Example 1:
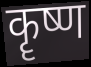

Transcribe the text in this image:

कॄष्ण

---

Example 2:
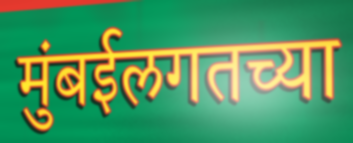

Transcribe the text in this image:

मुंबईलगतच्या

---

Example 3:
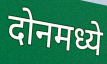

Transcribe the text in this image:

दोनमध्ये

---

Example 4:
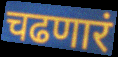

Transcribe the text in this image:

चढणारं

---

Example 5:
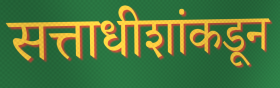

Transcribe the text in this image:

सत्ताधीशांकडून